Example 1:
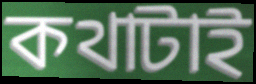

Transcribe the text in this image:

কথাটাই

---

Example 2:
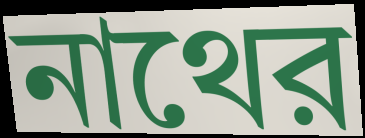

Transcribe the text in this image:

নাথের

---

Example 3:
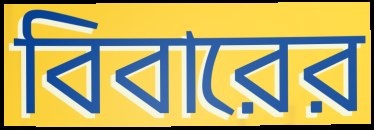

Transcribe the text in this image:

বিবারের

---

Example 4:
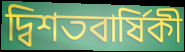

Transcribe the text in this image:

দ্বিশতবার্ষিকী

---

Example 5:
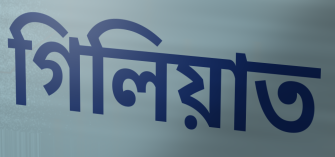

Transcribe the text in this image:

গিলিয়াত